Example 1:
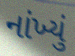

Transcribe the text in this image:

નાંખ્યું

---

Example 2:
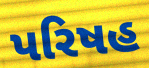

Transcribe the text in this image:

પરિષહ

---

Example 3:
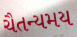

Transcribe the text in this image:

ચૈતન્યમય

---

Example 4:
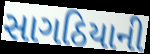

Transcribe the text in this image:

સાગઠિયાની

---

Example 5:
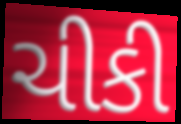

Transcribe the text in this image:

ચીકી